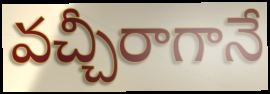
వచ్చీరాగానే